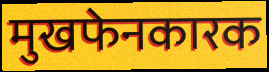
मुखफेनकारक